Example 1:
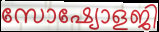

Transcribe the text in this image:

സോഷ്യോളജി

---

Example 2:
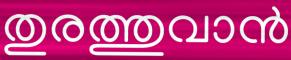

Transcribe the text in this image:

തുരത്തുവാൻ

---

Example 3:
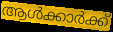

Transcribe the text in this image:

ആൾക്കാർക്ക്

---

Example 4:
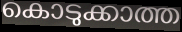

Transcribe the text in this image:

കൊടുക്കാത്ത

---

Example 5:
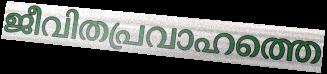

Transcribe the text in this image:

ജീവിതപ്രവാഹത്തെ